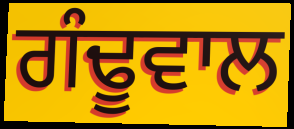
ਗੰਢੂਵਾਲ